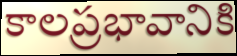
కాలప్రభావానికి